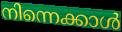
നിന്നെക്കാൾ